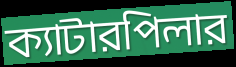
ক্যাটারপিলার